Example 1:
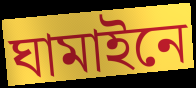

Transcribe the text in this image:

ঘামাইনে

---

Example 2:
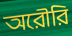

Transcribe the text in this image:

অরৌরি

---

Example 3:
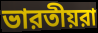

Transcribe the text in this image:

ভারতীয়রা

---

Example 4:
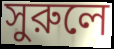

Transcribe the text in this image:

সুরুলে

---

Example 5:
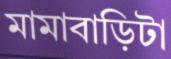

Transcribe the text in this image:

মামাবাড়িটা